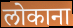
लोकाना